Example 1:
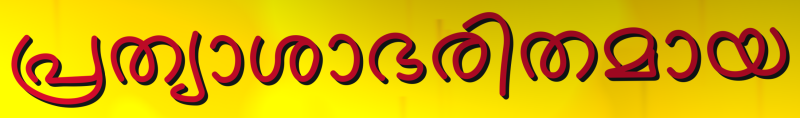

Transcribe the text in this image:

പ്രത്യാശാഭരിതമായ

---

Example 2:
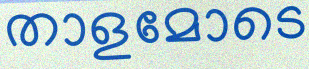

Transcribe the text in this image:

താളമോടെ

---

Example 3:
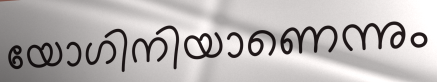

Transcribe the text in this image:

യോഗിനിയാണെന്നും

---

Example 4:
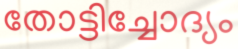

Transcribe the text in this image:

തോട്ടിച്ചോദ്യം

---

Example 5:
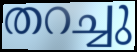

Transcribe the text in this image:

തറച്ചു